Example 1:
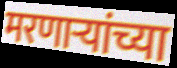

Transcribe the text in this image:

मरणाऱ्यांच्या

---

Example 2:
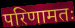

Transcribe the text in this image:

परिणामतः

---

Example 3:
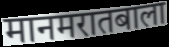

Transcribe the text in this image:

मानमरातबाला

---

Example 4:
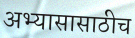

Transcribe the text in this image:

अभ्यासासाठीच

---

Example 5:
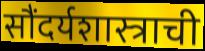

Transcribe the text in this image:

सौंदर्यशास्त्राची